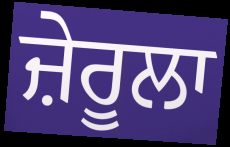
ਜ਼ੇਰੂਲਾ